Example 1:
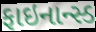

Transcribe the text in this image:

ફાઇનાન્સ્ડ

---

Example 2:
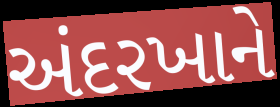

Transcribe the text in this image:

અંદરખાને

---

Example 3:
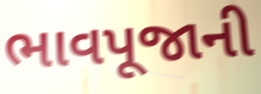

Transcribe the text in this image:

ભાવપૂજાની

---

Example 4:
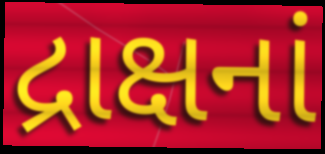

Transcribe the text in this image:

દ્રાક્ષનાં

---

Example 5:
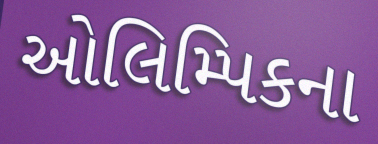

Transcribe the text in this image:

ઓલિમ્પિકના